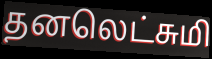
தனலெட்சுமி